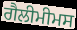
ਗੈਲੀਮੀਮਸ